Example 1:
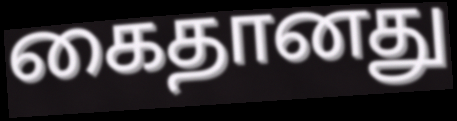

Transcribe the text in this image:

கைதானது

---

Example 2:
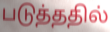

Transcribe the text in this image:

படுத்ததில்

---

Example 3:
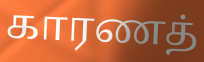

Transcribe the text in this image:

காரணத்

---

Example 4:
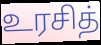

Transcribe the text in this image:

உரசித்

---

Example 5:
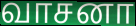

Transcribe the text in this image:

வாசனா